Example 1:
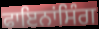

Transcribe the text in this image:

ਫਾਇਨਾਂਸਿੰਗ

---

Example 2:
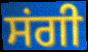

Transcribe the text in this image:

ਸਂਗੀ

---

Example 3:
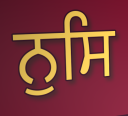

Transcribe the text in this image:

ਨੁਸਿ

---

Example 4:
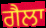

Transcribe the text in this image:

ਗੈਲਾ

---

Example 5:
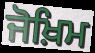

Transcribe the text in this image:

ਜੋਖ਼ਿਮ